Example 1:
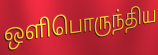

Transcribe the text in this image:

ஒளிபொருந்திய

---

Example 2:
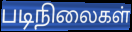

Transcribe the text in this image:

படிநிலைகள்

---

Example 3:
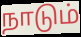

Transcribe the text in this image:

நாடும்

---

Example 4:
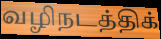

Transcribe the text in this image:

வழிநடத்திக்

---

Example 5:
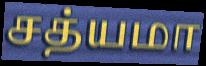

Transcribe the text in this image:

சத்யமா